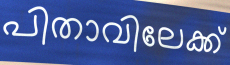
പിതാവിലേക്ക്